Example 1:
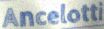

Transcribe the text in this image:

Ancelotti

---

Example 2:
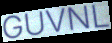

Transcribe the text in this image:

GUVNL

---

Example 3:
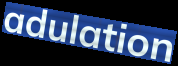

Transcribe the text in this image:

adulation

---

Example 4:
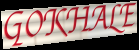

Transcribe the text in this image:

GOKHALE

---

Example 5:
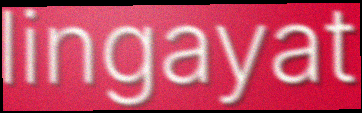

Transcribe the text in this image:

lingayat